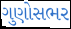
ગુણોસભર